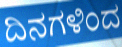
ದಿನಗಳಿಂದ